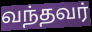
வந்தவர்